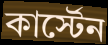
কার্স্টেন